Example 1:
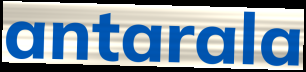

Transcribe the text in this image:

antarala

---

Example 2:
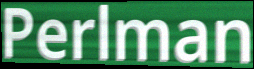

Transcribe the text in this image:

Perlman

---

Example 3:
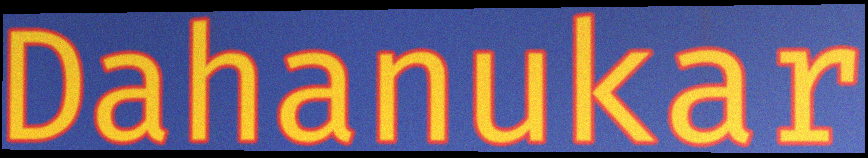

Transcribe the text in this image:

Dahanukar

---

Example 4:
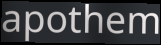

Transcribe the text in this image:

apothem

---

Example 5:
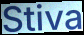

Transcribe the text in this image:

Stiva